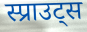
स्प्राउट्स